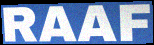
RAAF